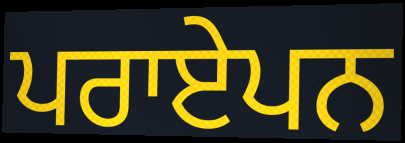
ਪਰਾਏਪਨ